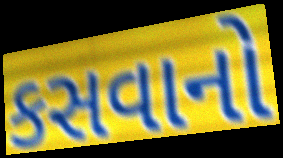
કસવાનો